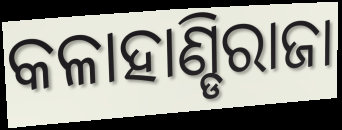
କଳାହାଣ୍ଡିରାଜା